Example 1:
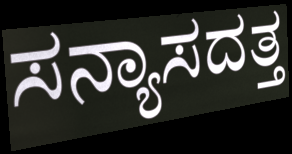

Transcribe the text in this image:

ಸನ್ಯಾಸದತ್ತ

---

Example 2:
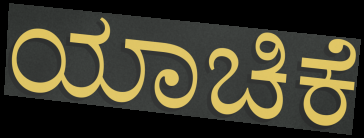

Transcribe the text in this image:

ಯಾಚಿಕೆ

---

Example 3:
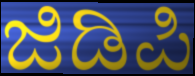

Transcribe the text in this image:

ಜಿಡಿಪಿ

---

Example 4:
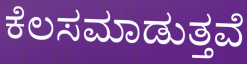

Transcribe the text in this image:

ಕೆಲಸಮಾಡುತ್ತವೆ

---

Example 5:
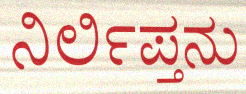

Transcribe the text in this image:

ನಿರ್ಲಿಪ್ತನು